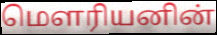
மௌரியனின்